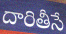
దారితీసే